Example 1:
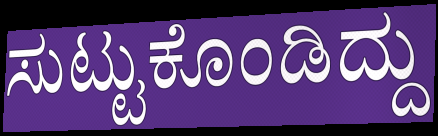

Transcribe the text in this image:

ಸುಟ್ಟುಕೊಂಡಿದ್ದು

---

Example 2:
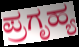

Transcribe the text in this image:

ಪ್ರಗೃಹ್ಯ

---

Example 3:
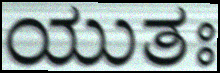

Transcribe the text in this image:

ಯುತಃ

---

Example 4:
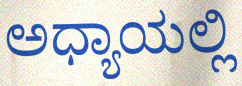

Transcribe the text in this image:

ಅಧ್ಯಾಯಲ್ಲಿ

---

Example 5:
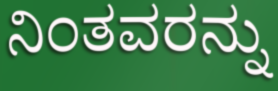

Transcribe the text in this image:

ನಿಂತವರನ್ನು